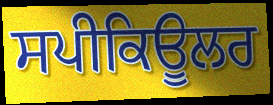
ਸਪੀਕਿਊਲਰ